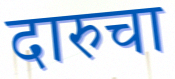
दारुचा